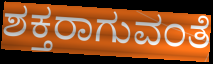
ಶಕ್ತರಾಗುವಂತೆ